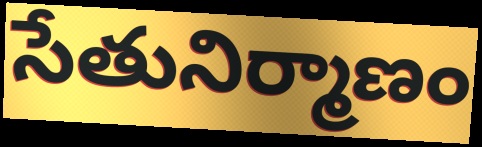
సేతునిర్మాణం